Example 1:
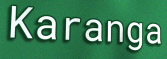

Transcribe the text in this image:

Karanga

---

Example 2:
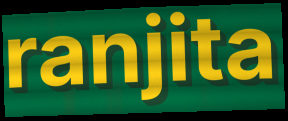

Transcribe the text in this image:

ranjita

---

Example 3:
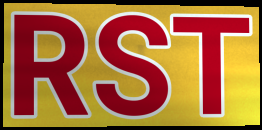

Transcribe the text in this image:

RST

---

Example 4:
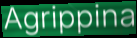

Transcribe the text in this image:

Agrippina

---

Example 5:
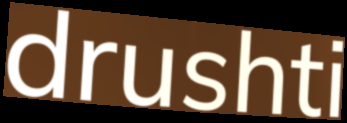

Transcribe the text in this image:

drushti